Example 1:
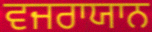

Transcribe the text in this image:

ਵਜਰਾਯਾਨ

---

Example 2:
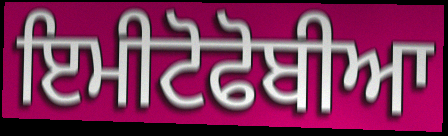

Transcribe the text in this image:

ਇਮੀਟੋਫੋਬੀਆ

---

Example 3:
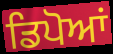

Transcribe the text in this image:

ਡਿਪੋਆਂ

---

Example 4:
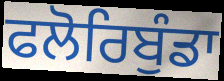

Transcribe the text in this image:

ਫਲੋਰਿਬੁੰਡਾ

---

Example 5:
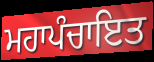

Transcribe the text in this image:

ਮਹਾਪੰਚਾਇਤ